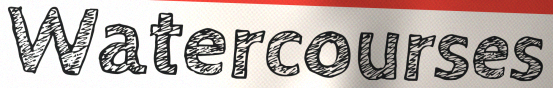
Watercourses